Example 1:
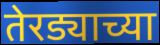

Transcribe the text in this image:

तेरड्याच्या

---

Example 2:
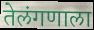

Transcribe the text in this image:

तेलंगणाला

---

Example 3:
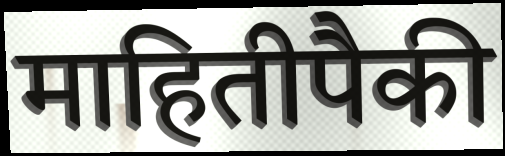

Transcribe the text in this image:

माहितीपैकी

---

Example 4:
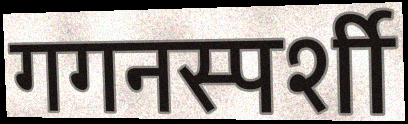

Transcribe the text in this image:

गगनस्पर्शी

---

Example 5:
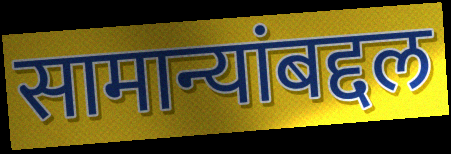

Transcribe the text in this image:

सामान्यांबद्दल